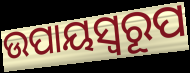
ଉପାୟସ୍ୱରୂପ